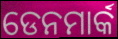
ଡେନମାର୍କ